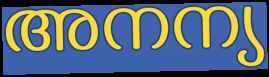
അനന്യ